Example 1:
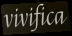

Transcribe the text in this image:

vivifica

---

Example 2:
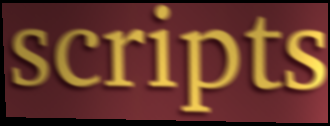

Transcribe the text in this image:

scripts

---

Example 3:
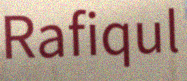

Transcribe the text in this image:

Rafiqul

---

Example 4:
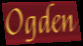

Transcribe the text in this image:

Ogden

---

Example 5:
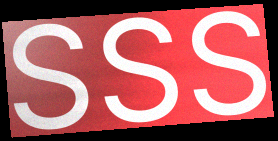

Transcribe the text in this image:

SSS